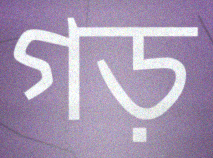
গড়